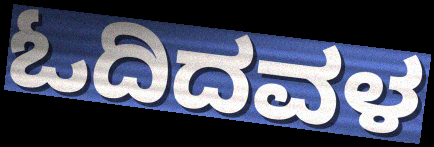
ಓದಿದವಳ